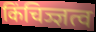
किंचिज्ज्ञत्व